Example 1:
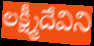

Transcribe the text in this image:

లక్ష్మీదేవిని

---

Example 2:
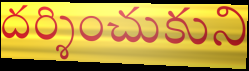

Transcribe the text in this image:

దర్శించుకుని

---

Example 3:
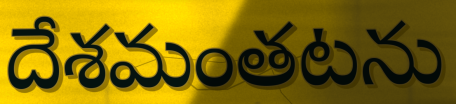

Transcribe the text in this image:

దేశమంతటను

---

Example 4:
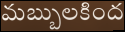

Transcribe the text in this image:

మబ్బులకింద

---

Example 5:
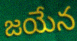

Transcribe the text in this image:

జయేన